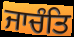
ਜਾਚੰਤਿ